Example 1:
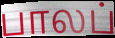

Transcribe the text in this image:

பாலப்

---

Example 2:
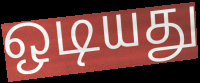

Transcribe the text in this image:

ஒடியது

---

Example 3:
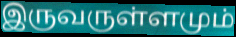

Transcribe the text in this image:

இருவருள்ளமும்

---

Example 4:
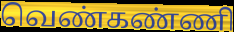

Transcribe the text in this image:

வெண்கண்ணி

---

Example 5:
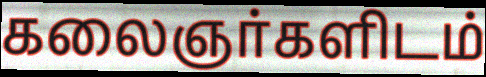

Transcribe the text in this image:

கலைஞர்களிடம்